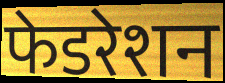
फेडरेशन